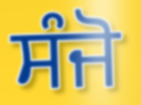
ਸੰਜੋ